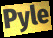
Pyle